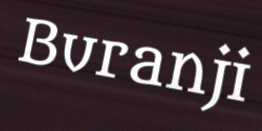
Buranji